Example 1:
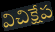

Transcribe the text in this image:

విచిక్షేప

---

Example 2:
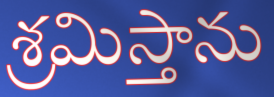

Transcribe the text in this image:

శ్రమిస్తాను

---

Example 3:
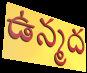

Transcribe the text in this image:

ఉన్మద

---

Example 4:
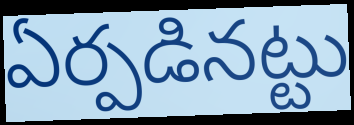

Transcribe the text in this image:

ఏర్పడినట్టు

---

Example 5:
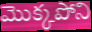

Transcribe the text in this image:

మొక్కపోని